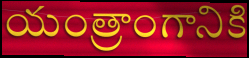
యంత్రాంగానికి